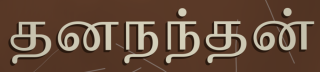
தனநந்தன்